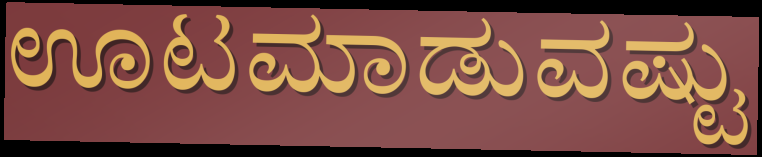
ಊಟಮಾಡುವಷ್ಟು